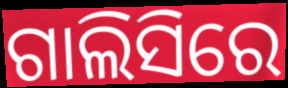
ଗାଲିସିରେ